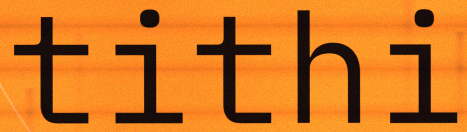
tithi